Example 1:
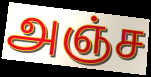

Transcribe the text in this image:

அஞ்ச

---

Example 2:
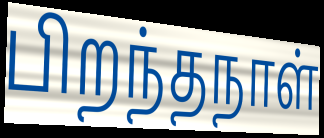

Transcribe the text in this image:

பிறந்தநாள்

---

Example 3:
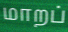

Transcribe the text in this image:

மாறப்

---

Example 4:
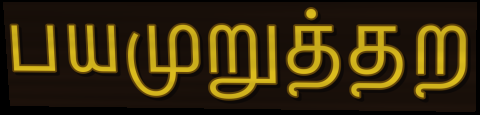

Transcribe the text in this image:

பயமுறுத்தற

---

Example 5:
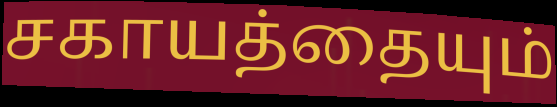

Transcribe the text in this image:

சகாயத்தையும்